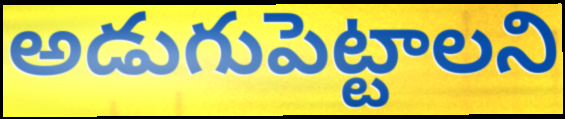
అడుగుపెట్టాలని